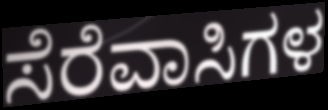
ಸೆರೆವಾಸಿಗಳ